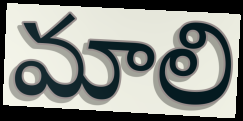
మాలి